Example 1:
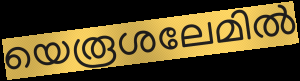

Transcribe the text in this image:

യെരൂശലേമിൽ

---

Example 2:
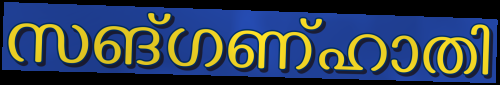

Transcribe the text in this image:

സങ്ഗണ്ഹാതി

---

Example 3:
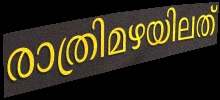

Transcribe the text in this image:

രാത്രിമഴയിലത്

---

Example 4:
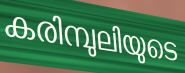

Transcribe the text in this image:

കരിമ്പുലിയുടെ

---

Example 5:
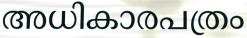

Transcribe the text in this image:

അധികാരപത്രം